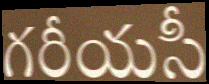
గరీయసీ